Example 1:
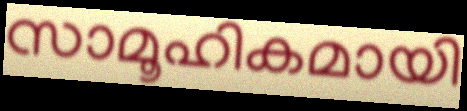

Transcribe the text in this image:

സാമൂഹികമായി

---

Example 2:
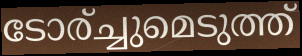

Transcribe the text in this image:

ടോര്ച്ചുമെടുത്ത്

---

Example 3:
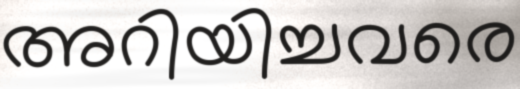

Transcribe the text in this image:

അറിയിച്ചവരെ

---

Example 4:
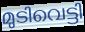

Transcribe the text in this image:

മുടിവെട്ടി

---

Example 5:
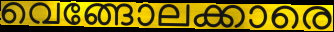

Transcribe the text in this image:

വെങ്ങോലക്കാരെ